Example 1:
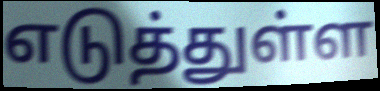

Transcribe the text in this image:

எடுத்துள்ள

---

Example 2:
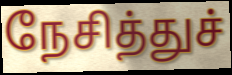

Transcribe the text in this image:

நேசித்துச்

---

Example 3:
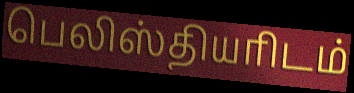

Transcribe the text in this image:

பெலிஸ்தியரிடம்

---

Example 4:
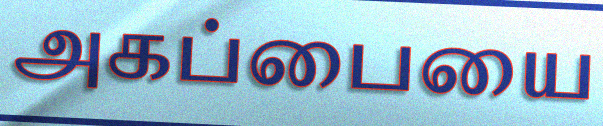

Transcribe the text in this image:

அகப்பையை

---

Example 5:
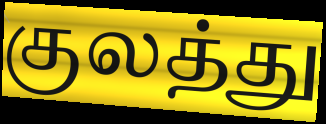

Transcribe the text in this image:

குலத்து